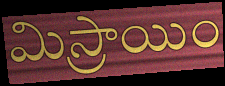
మిస్రాయిం